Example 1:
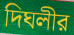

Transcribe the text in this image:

দিঘলীর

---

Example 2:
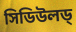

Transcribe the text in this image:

সিডিউলড্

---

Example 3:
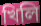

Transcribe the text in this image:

খিলি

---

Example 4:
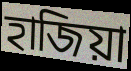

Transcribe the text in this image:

হাজিয়া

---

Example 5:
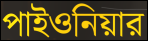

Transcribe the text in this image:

পাইওনিয়ার